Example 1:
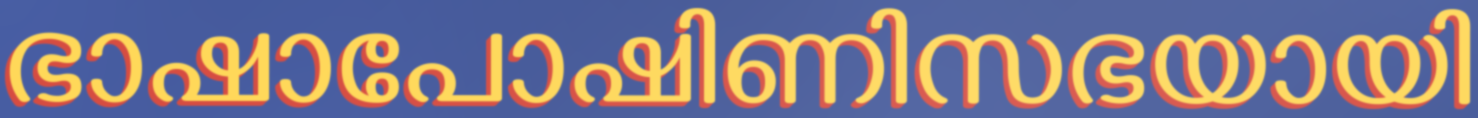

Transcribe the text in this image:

ഭാഷാപോഷിണിസഭയായി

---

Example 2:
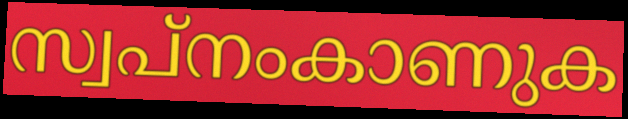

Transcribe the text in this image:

സ്വപ്നംകാണുക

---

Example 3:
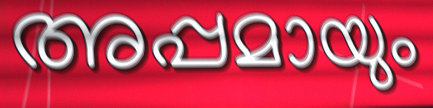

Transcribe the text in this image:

അപ്പമായും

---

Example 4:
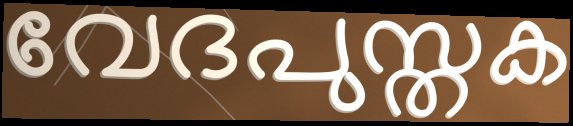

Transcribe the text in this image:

വേദപുസ്തക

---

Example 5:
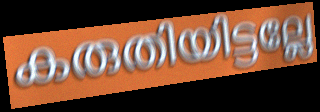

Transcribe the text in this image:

കരുതിയിട്ടല്ലേ